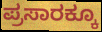
ಪ್ರಸಾರಕ್ಕೂ